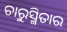
ଚାରୁସ୍ମିତାର